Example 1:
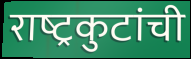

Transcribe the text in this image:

राष्ट्रकुटांची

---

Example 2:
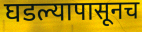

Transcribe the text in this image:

घडल्यापासूनच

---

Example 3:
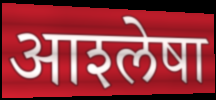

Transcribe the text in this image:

आश्‍लेषा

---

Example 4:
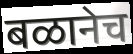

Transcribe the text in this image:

बळानेच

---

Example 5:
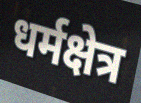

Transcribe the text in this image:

धर्मक्षेत्र